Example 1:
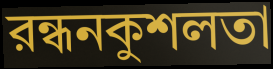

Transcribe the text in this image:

রন্ধনকুশলতা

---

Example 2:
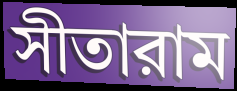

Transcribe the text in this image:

সীতারাম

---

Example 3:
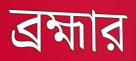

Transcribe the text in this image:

ব্রহ্মার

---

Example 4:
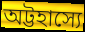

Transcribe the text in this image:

অট্টহাস্যে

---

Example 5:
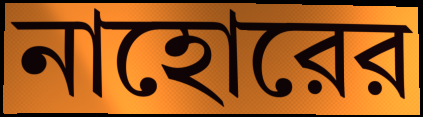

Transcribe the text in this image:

নাহোরের